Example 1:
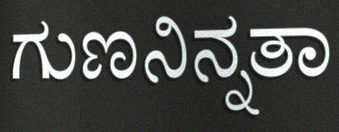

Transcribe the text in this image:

ಗುಣನಿನ್ನತಾ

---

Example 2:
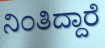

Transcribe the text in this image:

ನಿಂತಿದ್ದಾರೆ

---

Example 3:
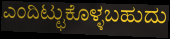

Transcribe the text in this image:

ಎಂದಿಟ್ಟುಕೊಳ್ಳಬಹುದು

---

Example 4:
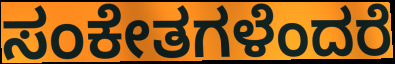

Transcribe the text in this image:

ಸಂಕೇತಗಳೆಂದರೆ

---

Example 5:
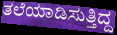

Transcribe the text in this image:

ತಲೆಯಾಡಿಸುತ್ತಿದ್ದ